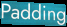
Padding